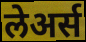
लेअर्स